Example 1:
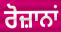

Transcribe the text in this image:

ਰੋਜ਼ਾਨਾਂ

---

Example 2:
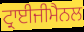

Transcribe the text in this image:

ਟ੍ਰਾਈਜੀਮੈਨਲ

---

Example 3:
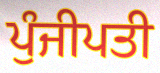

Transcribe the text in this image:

ਪੁੰਜੀਪਤੀ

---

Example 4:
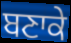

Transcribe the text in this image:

ਬਣਾਕੇ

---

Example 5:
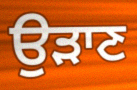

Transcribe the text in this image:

ਉਡ਼ਾਣ